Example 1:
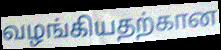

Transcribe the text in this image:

வழங்கியதற்கான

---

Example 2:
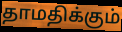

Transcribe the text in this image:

தாமதிக்கும்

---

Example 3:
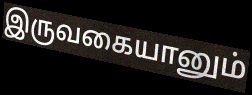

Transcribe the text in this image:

இருவகையானும்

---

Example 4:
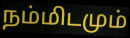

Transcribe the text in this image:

நம்மிடமும்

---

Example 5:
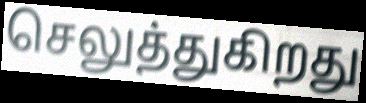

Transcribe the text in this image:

செலுத்துகிறது